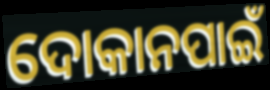
ଦୋକାନପାଇଁ